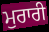
ਮੁਰਾਰੀ